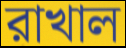
রাখাল